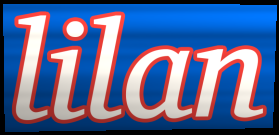
lilan